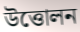
উত্তোলন